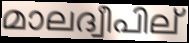
മാലദ്വീപില്